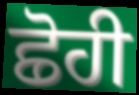
ਛੋਹੀ